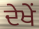
ਦੇਖੇਂ